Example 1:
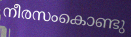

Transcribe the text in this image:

നീരസംകൊണ്ടു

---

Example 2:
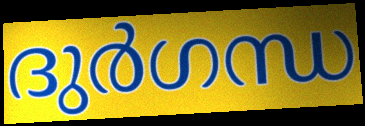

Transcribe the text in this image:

ദുർഗന്ധ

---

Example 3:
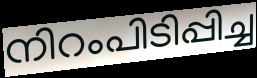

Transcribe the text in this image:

നിറംപിടിപ്പിച്ച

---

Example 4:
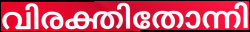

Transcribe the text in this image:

വിരക്തിതോന്നി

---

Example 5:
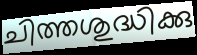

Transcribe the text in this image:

ചിത്തശുദ്ധിക്കു